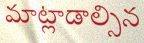
మాట్లాడాల్సిన